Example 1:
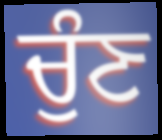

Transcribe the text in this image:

ਚੁੰਣ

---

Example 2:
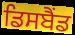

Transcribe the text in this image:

ਡਿਸਬੈਂਡ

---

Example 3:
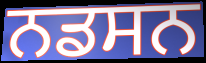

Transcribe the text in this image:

ਨਡਸਨ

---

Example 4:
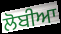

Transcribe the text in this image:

ਲੋਬੀਆ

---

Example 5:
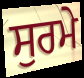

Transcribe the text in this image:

ਸੁਰਮੇ